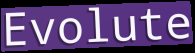
Evolute